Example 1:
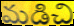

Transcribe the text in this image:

మడిచి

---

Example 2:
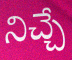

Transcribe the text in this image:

నిచ్చే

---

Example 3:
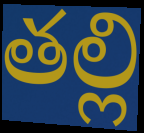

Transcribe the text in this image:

తల్లి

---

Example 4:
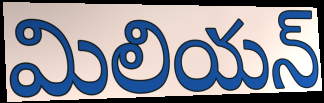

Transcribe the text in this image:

మిలియన్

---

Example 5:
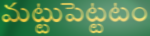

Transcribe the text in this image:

మట్టుపెట్టటం